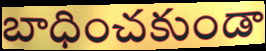
బాధించకుండా